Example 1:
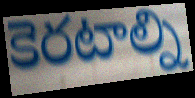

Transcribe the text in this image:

కెరటాల్ని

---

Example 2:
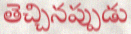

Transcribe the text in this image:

తెచ్చినప్పుడు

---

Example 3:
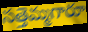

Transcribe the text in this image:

సత్తెమ్మగారూ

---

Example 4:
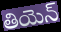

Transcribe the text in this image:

తియెన్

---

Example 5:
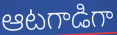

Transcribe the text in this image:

ఆటగాడిగా